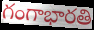
గంగాభారతి